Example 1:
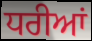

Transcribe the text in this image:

ਧਰੀਆਂ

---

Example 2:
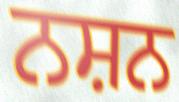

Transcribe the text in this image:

ਨਸ਼ਨ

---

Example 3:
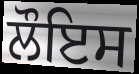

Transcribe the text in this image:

ਲੌਇਸ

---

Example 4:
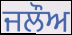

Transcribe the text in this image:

ਜਲੌਅ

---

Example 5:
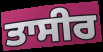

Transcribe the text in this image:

ਤਾਸੀਰ